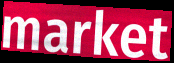
market